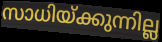
സാധിയ്ക്കുന്നില്ല